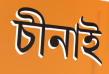
চীনাই